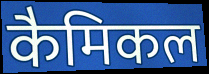
कैमिकल